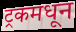
ट्रकमधून